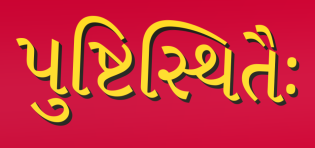
પુષ્ટિસ્થિતૈઃ